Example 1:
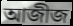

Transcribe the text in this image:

আজীজ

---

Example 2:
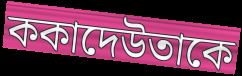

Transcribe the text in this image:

ককাদেউতাকে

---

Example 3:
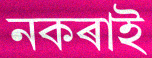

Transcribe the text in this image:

নকৰাই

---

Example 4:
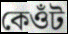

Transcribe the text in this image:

কেওঁট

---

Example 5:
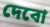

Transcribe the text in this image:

দেবো